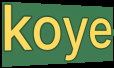
koye